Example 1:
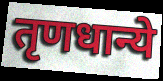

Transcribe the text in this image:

तृणधान्ये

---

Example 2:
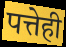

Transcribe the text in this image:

पत्तेही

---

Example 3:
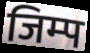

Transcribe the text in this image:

जिम्प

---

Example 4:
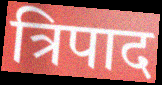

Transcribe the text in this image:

त्रिपाद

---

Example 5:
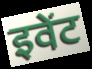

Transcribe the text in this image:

इवेंट